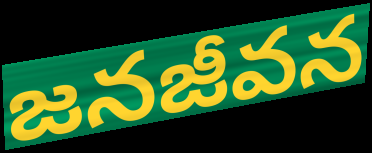
జనజీవన